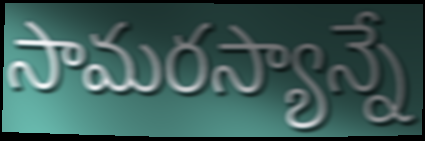
సామరస్యాన్నే